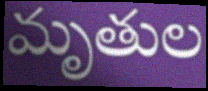
మృతుల